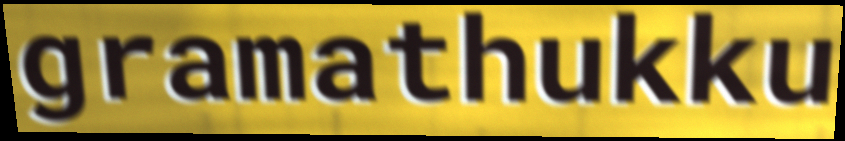
gramathukku